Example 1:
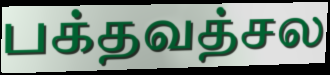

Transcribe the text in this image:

பக்தவத்சல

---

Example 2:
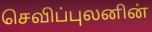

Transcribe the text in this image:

செவிப்புலனின்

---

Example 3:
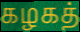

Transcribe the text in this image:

கழகத்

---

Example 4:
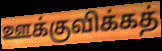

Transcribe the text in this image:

ஊக்குவிக்கத்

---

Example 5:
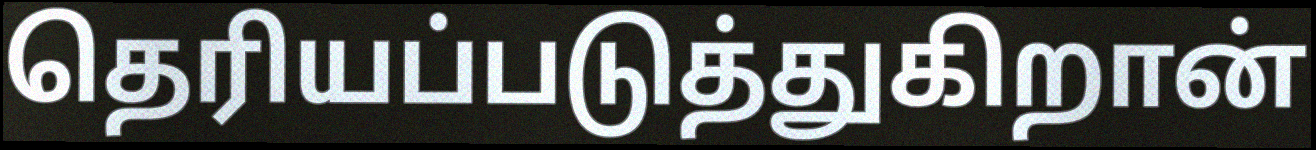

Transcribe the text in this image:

தெரியப்படுத்துகிறான்